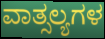
ವಾತ್ಸಲ್ಯಗಳ